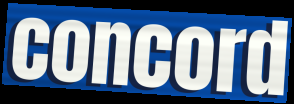
concord